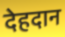
देहदान